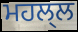
ਮਹਲ੍ਲ